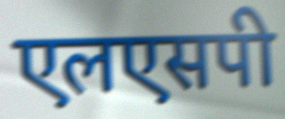
एलएसपी